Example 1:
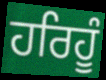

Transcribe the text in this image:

ਹਰਿਹੂੰ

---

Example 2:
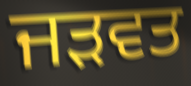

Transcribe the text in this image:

ਜੜਵਤ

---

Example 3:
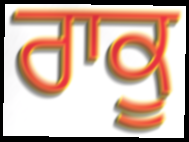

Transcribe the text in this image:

ਰਾਕੂ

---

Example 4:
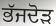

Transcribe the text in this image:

ਭੱਜਦੋੜ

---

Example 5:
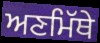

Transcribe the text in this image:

ਅਣਮਿੱਥੇ